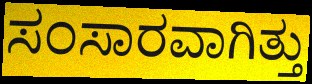
ಸಂಸಾರವಾಗಿತ್ತು